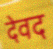
देवद